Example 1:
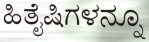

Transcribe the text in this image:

ಹಿತೈಷಿಗಳನ್ನೂ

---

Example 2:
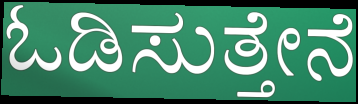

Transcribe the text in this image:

ಓಡಿಸುತ್ತೇನೆ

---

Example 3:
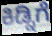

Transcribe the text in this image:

ಕಿಡ್ನಿಗೆ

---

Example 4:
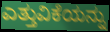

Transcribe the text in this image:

ಎತ್ತುವಿಕೆಯನ್ನು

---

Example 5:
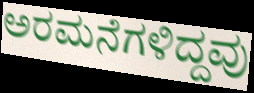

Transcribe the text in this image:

ಅರಮನೆಗಳಿದ್ದವು